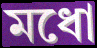
মধো